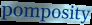
pomposity